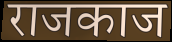
राजकाज